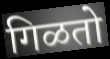
गिळतो